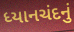
ધ્યાનચંદનું